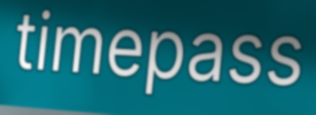
timepass